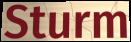
Sturm